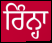
ਰਿੰਨ੍ਹਾ